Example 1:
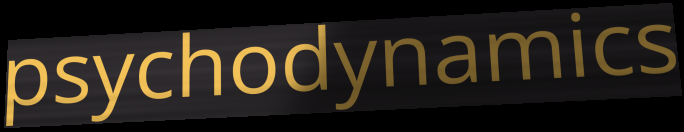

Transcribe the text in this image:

psychodynamics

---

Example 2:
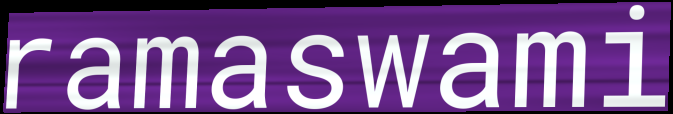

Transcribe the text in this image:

ramaswami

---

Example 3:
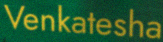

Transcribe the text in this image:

Venkatesha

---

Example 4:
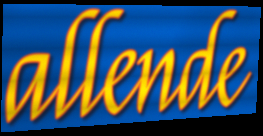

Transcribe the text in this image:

allende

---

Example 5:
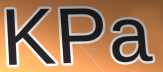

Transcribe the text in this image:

KPa